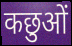
कछुओं